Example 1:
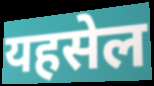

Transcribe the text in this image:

यहसेल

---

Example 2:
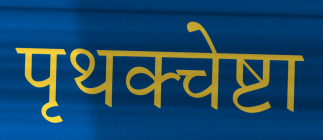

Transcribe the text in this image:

पृथक्चेष्टा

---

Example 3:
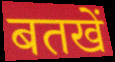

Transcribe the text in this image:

बतखें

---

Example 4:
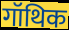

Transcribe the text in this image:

गॉथिक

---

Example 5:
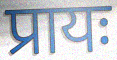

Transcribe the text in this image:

प्रायः